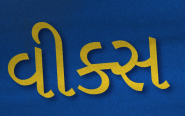
વીક્સ